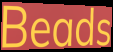
Beads